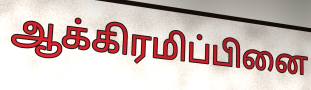
ஆக்கிரமிப்பினை